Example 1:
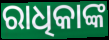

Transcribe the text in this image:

ରାଧିକାଙ୍କ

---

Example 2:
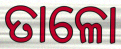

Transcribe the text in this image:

ତାଳୋ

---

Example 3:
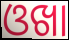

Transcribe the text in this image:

ଓଖା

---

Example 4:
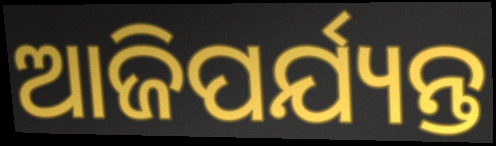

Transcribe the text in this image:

ଆଜିପର୍ଯ୍ୟନ୍ତ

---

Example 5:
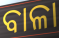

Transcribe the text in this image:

ବାଳା